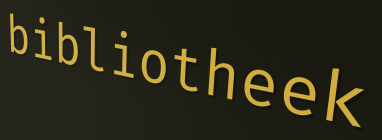
bibliotheek